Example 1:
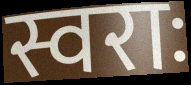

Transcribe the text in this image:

स्वराः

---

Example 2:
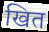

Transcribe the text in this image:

खित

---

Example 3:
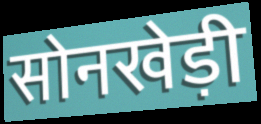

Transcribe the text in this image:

सोनखेड़ी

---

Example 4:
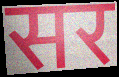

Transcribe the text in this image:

सर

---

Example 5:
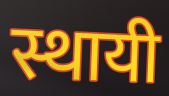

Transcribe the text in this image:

स्थायी